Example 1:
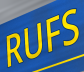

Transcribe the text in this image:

RUFS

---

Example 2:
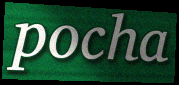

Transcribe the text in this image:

pocha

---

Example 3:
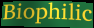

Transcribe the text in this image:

Biophilic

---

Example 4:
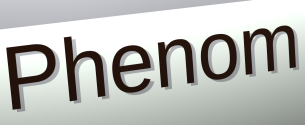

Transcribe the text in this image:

Phenom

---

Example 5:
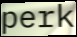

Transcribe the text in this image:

perk